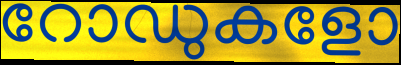
റോഡുകളോ